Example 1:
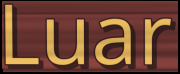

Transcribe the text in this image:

Luar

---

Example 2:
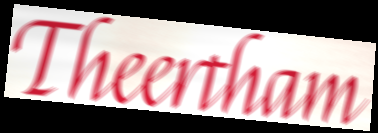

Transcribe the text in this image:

Theertham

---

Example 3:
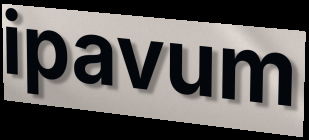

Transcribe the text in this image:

ipavum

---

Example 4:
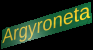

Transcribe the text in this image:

Argyroneta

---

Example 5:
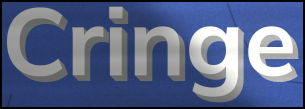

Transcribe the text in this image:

Cringe